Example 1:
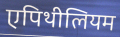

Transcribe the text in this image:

एपिथीलियम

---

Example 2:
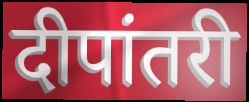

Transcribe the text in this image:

दीपांतरी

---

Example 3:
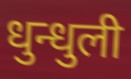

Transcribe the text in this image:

धुन्धुली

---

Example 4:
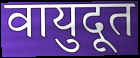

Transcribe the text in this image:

वायुदूत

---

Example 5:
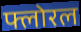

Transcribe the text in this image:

फ्लोरल